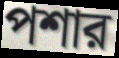
পশার